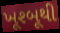
ખૂશ્બૂથી